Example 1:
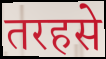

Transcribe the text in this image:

तरहसे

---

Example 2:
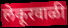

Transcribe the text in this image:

लेकूरवाळी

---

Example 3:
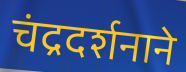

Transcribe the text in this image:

चंद्रदर्शनाने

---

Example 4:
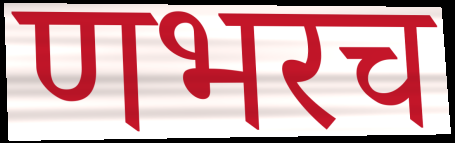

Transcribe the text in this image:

णभरच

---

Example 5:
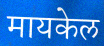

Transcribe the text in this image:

मायकेल